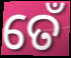
ତେଁ